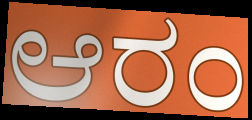
ಆರಂ